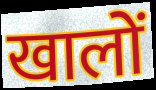
खालों